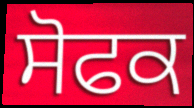
ਸੋਫਕ